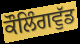
ਕੌਲਿੰਗਵੁੱਡ